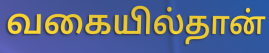
வகையில்தான்